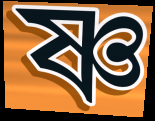
ষ্ণ